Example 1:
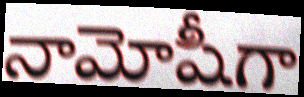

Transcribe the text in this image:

నామోషీగా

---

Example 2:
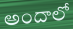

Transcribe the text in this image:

అందాలో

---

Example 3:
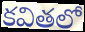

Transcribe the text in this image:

కవితలో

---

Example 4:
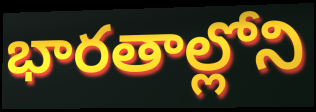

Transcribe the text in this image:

భారతాల్లోని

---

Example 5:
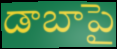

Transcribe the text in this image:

డాబాపై